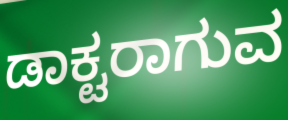
ಡಾಕ್ಟರಾಗುವ